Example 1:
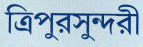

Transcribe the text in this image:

ত্রিপুরসুন্দরী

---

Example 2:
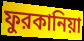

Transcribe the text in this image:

ফুরকানিয়া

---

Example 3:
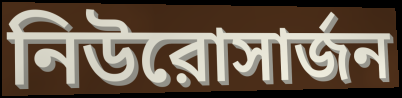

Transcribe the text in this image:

নিউরোসার্জন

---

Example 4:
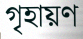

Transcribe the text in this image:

গৃহায়ণ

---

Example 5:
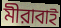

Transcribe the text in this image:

মীরাবাই